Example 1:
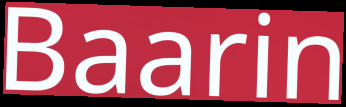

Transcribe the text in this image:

Baarin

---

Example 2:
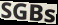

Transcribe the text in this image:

SGBs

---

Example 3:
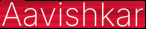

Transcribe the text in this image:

Aavishkar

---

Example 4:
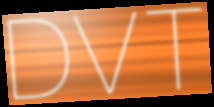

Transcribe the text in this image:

DVT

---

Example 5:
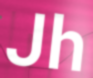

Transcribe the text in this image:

Jh